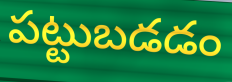
పట్టుబడడం